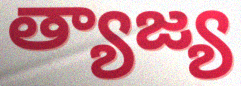
త్యాజ్య